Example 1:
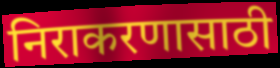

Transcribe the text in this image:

निराकरणासाठी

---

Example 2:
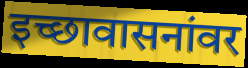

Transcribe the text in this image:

इच्छावासनांवर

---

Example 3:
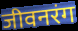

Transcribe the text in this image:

जीवनरंग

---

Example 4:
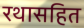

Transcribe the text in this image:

रथासहित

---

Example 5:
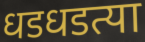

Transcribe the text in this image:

धडधडत्या